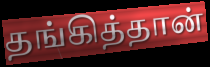
தங்கித்தான்